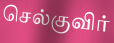
செல்குவிர்